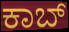
ಕಾಬ್